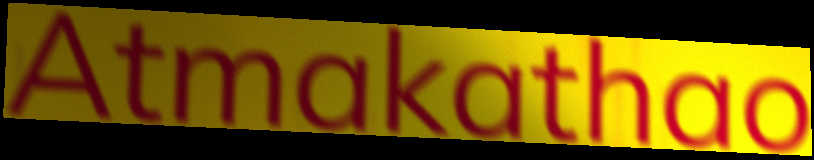
Atmakathao